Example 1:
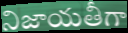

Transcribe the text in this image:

నిజాయతీగా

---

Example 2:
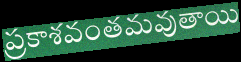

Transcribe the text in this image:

ప్రకాశవంతమవుతాయి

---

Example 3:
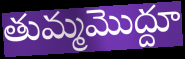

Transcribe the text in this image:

తుమ్మమొద్దూ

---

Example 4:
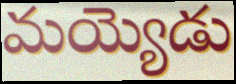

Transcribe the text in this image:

మయ్యెడు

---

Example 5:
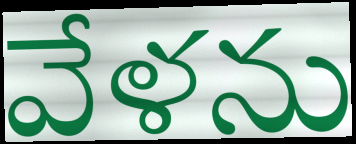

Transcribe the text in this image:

వేళను